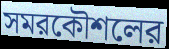
সমরকৌশলের